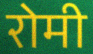
रोमी